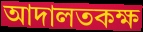
আদালতকক্ষ